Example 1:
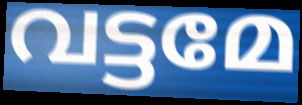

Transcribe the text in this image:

വട്ടമേ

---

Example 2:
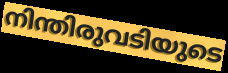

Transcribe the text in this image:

നിന്തിരുവടിയുടെ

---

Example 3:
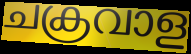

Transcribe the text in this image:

ചക്രവാള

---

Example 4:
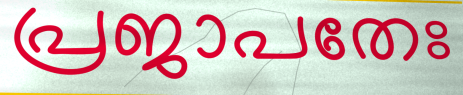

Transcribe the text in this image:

പ്രജാപതേഃ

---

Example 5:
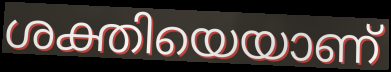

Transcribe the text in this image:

ശക്തിയെയാണ്